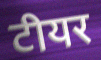
टीयर